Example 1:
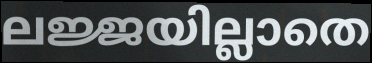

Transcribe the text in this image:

ലജ്ജയില്ലാതെ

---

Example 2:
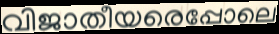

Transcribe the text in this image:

വിജാതീയരെപ്പോലെ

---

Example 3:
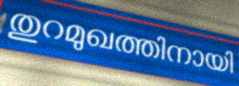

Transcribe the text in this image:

തുറമുഖത്തിനായി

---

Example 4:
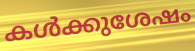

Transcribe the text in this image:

കൾക്കുശേഷം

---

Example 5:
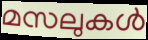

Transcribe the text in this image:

മസലുകൾ